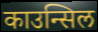
काउन्सिल